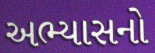
અભ્યાસનો